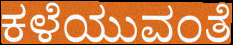
ಕಳೆಯುವಂತೆ